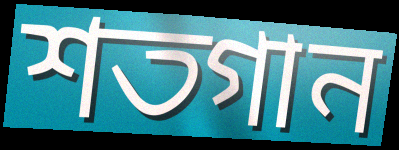
শতগান